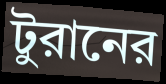
টুরানের